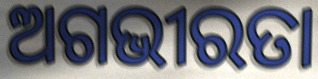
ଅଗଭୀରତା